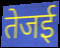
तेजई